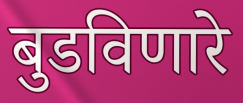
बुडविणारे